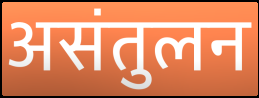
असंतुलन